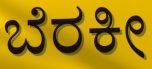
ಬೆರಕೀ